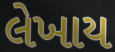
લેખાય